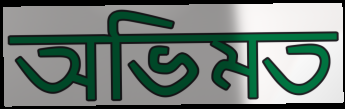
অভিমত